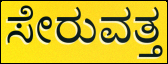
ಸೇರುವತ್ತ